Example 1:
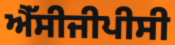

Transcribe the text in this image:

ਐੱਸੀਜੀਪੀਸੀ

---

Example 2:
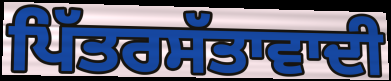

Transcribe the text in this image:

ਪਿੱਤਰਸੱਤਾਵਾਦੀ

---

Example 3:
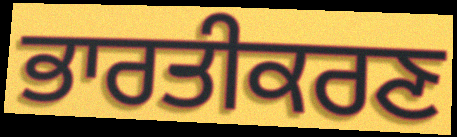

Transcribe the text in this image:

ਭਾਰਤੀਕਰਣ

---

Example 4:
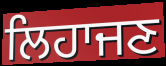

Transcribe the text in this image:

ਲਿਹਾਜਣ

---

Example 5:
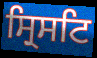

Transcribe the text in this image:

ਸ੍ਰਿਸਟਿ